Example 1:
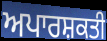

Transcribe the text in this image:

ਅਪਾਰਸ਼ਕਤੀ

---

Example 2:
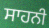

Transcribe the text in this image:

ਸਾਹਨੀ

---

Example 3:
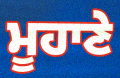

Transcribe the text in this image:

ਮੂਹਾਣੇ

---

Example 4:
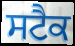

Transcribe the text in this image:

ਸਟੈਕ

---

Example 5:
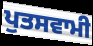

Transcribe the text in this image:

ਪੁਤਸਵਾਮੀ